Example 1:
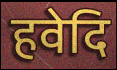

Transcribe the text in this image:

हवेदि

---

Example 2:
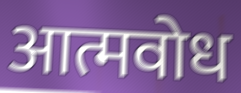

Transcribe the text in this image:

आत्मवोध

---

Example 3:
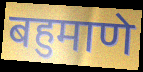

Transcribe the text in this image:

बहुमाणे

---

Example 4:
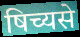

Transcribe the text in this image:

षिच्यसे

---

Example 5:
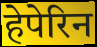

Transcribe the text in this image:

हेपेरिन